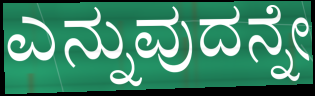
ಎನ್ನುವುದನ್ನೇ